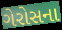
ગેરોસના